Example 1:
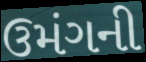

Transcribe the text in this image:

ઉમંગની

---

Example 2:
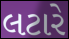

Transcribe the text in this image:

લટારે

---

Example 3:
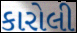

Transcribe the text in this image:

કારોલી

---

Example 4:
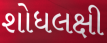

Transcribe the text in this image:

શોધલક્ષી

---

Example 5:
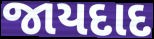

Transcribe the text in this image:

જાયદાદ